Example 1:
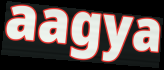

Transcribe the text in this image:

aagya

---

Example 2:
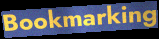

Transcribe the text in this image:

Bookmarking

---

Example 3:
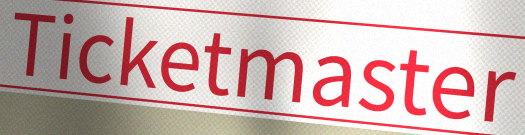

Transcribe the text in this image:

Ticketmaster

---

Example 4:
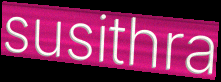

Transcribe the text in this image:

susithra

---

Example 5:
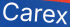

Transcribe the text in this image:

Carex